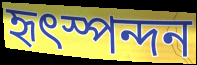
হৃৎস্পন্দন